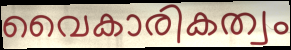
വൈകാരികത്വം